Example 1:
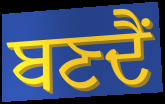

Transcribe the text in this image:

ਬਣਦੈਂ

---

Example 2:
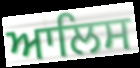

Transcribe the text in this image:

ਆਲਿਸ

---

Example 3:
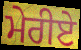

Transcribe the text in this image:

ਮੇਰੀਏ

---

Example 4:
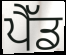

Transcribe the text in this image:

ਪੈੱਡ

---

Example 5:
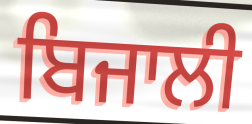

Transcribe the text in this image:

ਬਿਜਾਲੀ